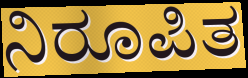
ನಿರೂಪಿತ